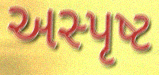
અસ્પૃષ્ટ